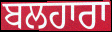
ਬਲਹਾਰਾ